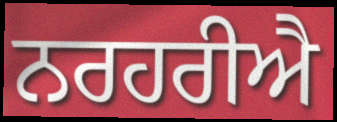
ਨਰਹਰੀਐ